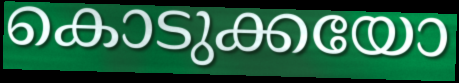
കൊടുക്കയോ